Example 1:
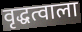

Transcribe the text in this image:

वृद्धत्वाला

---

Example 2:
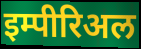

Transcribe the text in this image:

इम्पीरिअल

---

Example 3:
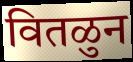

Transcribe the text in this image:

वितळुन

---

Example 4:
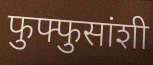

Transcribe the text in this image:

फुफ्फुसांशी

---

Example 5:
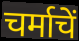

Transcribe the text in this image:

चर्माचें